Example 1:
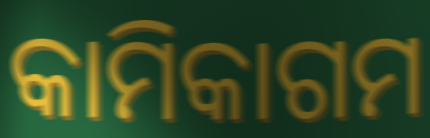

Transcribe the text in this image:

କାମିକାଗମ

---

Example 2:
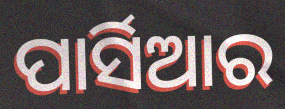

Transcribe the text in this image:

ପାର୍ସିଆର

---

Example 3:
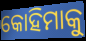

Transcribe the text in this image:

କୋହିମାକୁ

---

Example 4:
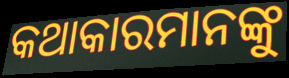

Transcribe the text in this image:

କଥାକାରମାନଙ୍କୁ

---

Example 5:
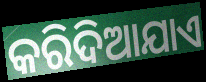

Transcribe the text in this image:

କରିଦିଆଯାଏ